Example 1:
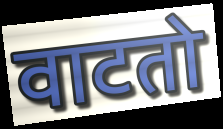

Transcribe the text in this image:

वाटतो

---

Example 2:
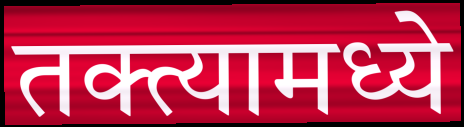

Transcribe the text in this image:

तक्त्यामध्ये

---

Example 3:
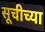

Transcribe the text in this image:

सूचीच्या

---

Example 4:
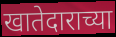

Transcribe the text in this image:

खातेदाराच्या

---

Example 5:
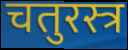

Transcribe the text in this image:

चतुरस्त्र